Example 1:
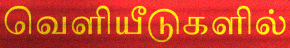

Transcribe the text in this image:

வெளியீடுகளில்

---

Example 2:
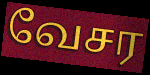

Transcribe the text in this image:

வேசர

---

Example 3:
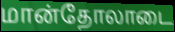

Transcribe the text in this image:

மான்தோலாடை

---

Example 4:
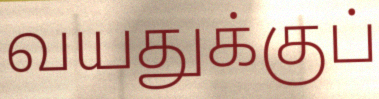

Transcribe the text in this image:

வயதுக்குப்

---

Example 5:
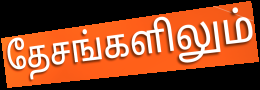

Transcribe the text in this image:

தேசங்களிலும்